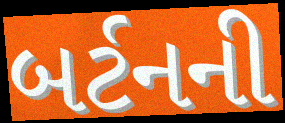
બર્ટનની